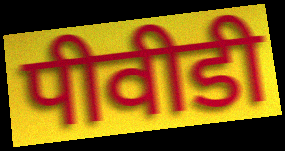
पीवीडी